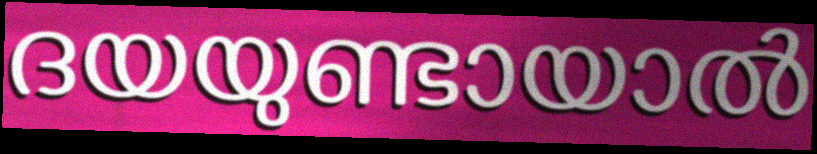
ദയയുണ്ടായാൽ